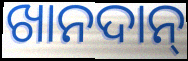
ଖାନଦାନ୍